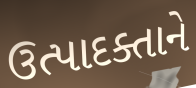
ઉત્પાદક્તાને